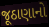
જૂઠાણાનો